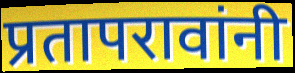
प्रतापरावांनी